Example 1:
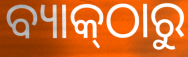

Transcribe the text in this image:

ବ୍ୟାକ୍‌ଠାରୁ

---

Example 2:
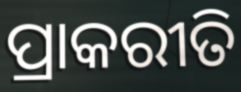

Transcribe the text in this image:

ପ୍ରାକରୀତି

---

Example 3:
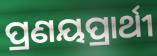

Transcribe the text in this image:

ପ୍ରଣୟପ୍ରାର୍ଥୀ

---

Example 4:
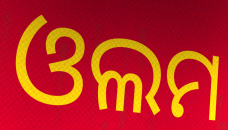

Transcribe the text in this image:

ଓଲମ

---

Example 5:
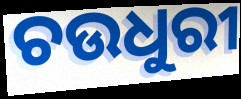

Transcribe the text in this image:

ଚଉଧୁରୀ